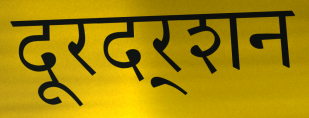
दूरदर्शन